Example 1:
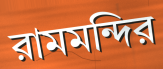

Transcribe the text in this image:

রামমন্দির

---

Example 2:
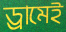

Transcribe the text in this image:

ড্রামেই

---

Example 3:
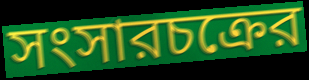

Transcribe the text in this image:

সংসারচক্রের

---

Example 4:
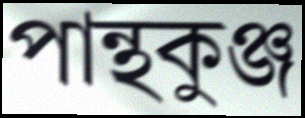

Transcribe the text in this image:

পান্থকুঞ্জ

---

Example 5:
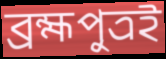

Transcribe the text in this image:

ব্রহ্মপুত্রই